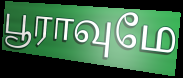
பூராவுமே